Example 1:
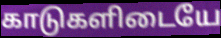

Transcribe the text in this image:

காடுகளிடையே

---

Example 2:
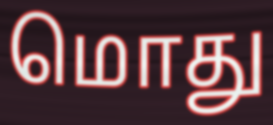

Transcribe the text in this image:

மொது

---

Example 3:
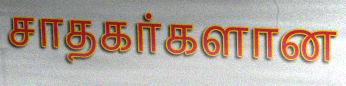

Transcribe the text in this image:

சாதகர்களான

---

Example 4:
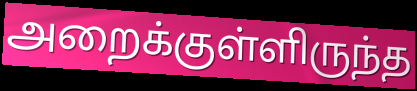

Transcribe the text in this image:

அறைக்குள்ளிருந்த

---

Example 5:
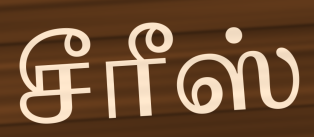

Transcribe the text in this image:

சீரீஸ்